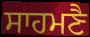
ਸਾਹਮਣੈ